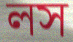
লস